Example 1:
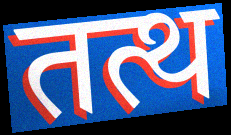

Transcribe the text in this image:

तत्थ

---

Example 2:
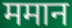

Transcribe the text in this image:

ममान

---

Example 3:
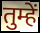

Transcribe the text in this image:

तुम्‍हें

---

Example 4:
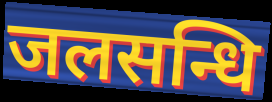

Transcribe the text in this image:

जलसन्धि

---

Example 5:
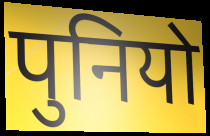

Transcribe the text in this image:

पुनियो